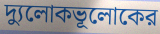
দ্যুলোকভূলোকের